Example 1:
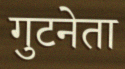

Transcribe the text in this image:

गुटनेता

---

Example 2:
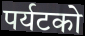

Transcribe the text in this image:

पर्यटको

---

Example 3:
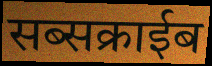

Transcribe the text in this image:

सब्सक्राईब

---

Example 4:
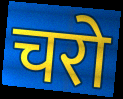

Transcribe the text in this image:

चरो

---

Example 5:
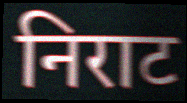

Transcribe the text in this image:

निराट